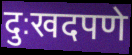
दुःखदपणे